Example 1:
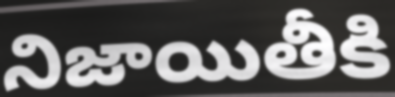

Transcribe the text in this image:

నిజాయితీకి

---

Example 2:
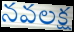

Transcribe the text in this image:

నవలక్ష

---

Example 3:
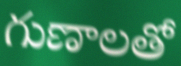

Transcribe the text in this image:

గుణాలతో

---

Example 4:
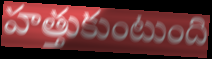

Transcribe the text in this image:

హత్తుకుంటుంది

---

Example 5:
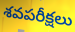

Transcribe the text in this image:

శవపరీక్షలు